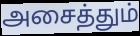
அசைத்தும்